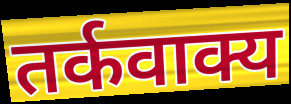
तर्कवाक्य